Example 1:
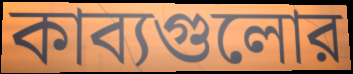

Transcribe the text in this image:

কাব্যগুলোর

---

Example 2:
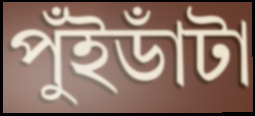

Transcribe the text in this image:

পুঁইডাঁটা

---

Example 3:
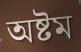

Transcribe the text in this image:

অষ্টম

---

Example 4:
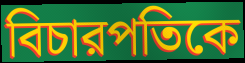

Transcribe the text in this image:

বিচারপতিকে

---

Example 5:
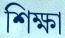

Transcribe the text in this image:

শিক্ষা